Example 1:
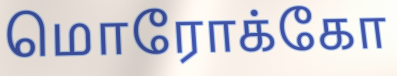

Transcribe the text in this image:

மொரோக்கோ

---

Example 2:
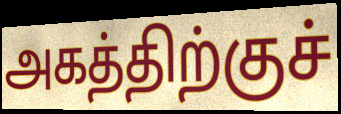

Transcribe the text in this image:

அகத்திற்குச்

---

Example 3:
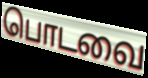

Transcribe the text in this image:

பொடவை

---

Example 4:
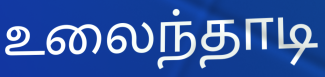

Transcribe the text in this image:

உலைந்தாடி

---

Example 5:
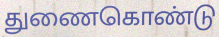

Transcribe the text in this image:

துணைகொண்டு